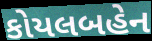
કોયલબહેન